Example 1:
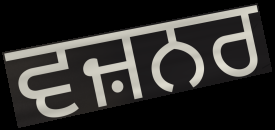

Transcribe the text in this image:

ਵਜ਼ਨਰ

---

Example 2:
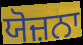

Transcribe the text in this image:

ਯੋਜ਼ਨਾ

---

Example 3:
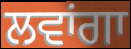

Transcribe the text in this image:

ਲਵਾਂਗਾ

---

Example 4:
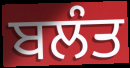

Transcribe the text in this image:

ਬਲੰਤ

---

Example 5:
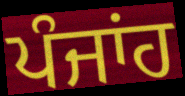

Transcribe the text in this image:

ਪੰਜਾਂਹ